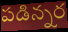
పడిన్నర